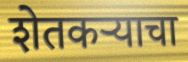
शेतकऱ्याचा